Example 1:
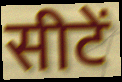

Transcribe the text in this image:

सीटें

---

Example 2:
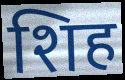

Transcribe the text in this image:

शिह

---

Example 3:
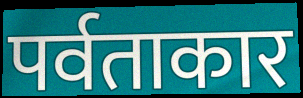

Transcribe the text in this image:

पर्वताकार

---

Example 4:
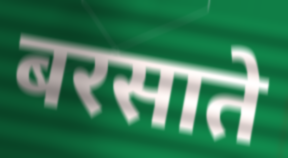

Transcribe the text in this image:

बरसाते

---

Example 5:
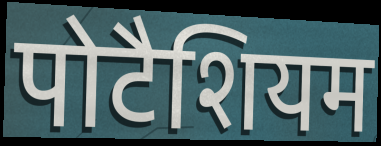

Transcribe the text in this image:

पोटैशियम